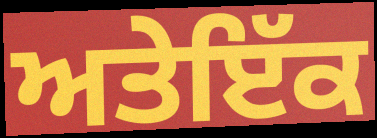
ਅਤੇਇੱਕ